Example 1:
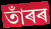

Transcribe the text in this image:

তাঁৰৰ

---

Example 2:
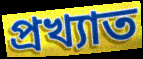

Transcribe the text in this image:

প্ৰখ্যাত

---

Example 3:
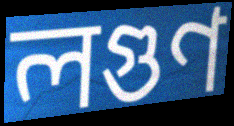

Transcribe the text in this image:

লগুণ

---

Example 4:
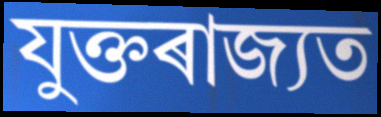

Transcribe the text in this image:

যুক্তৰাজ্যত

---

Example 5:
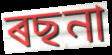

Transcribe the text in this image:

ৰছনা